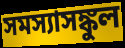
সমস্যাসঙ্কুল